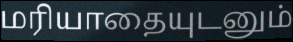
மரியாதையுடனும்